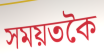
সময়তকৈ